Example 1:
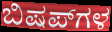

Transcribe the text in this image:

ಬಿಷಪ್‌ಗಳ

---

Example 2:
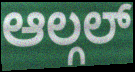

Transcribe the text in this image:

ಆಲ್ಗಲ್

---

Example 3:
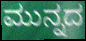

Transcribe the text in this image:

ಮುನ್ನದ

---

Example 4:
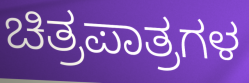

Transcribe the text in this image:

ಚಿತ್ರಪಾತ್ರಗಳ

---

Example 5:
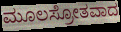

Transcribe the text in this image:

ಮೂಲಸ್ರೋತವಾದ